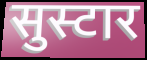
सुस्टार